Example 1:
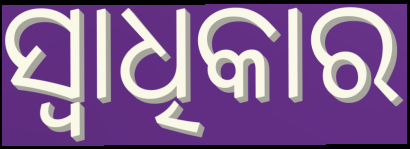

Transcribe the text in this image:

ସ୍ବାଧିକାର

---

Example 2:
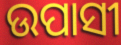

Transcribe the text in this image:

ଉପାସୀ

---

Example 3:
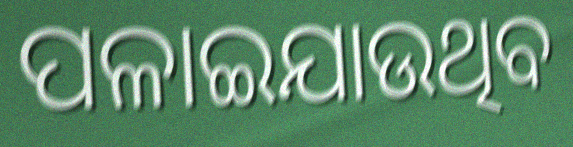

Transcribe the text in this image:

ପଳାଇଯାଉଥିବ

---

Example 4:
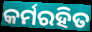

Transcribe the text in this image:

କର୍ମରହିତ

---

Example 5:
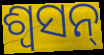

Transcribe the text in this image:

ଶ୍ୱସନ୍